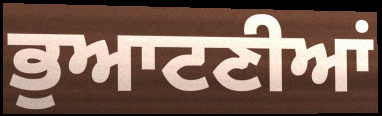
ਭੁਆਟਣੀਆਂ